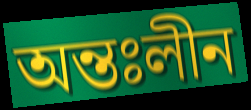
অন্তঃলীন